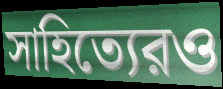
সাহিত্যেরও